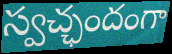
స్వచ్ఛందంగా